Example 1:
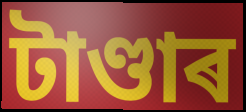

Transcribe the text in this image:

টাণ্ডাৰ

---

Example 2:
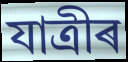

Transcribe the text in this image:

যাত্ৰীৰ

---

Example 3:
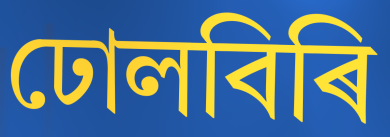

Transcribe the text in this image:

ঢোলবিৰি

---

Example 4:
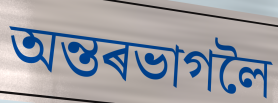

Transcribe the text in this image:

অন্তৰভাগলৈ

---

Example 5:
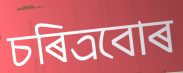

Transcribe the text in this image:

চৰিত্ৰবোৰ